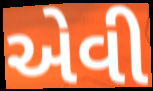
એવી